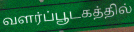
வளர்ப்பூடகத்தில்